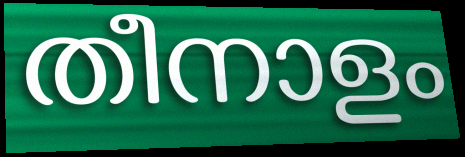
തീനാളം